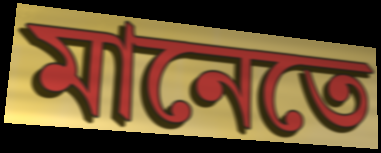
মানেতে